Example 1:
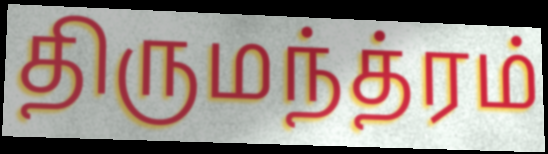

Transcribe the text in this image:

திருமந்த்ரம்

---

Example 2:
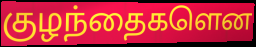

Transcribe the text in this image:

குழந்தைகளென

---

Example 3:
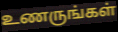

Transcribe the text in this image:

உணருங்கள்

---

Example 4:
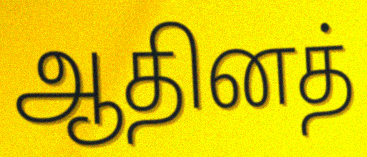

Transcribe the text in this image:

ஆதினத்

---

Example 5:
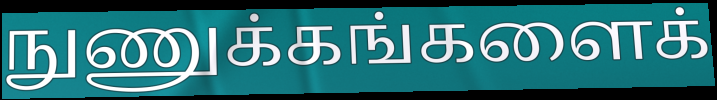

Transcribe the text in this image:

நுணுக்கங்களைக்